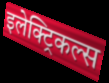
इलेक्ट्रिकल्स